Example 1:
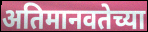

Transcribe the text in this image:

अतिमानवतेच्या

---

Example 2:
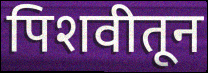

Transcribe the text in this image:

पिशवीतून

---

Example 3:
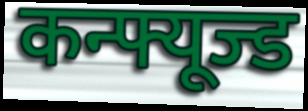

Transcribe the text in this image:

कन्फ्यूज्ड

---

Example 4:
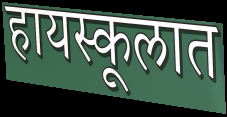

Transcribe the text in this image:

हायस्कूलात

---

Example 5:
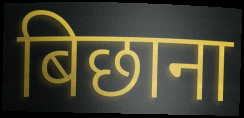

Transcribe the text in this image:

बिछाना